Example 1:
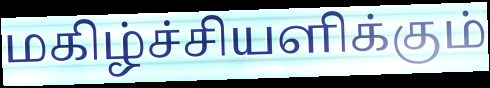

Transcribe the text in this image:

மகிழ்ச்சியளிக்கும்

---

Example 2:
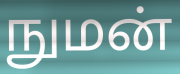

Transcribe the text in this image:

நுமன்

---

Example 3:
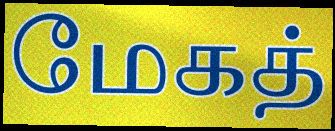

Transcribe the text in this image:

மேகத்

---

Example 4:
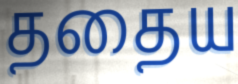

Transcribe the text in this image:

ததைய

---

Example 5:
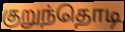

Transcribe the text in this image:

குறுந்தொடி